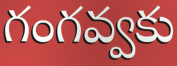
గంగవ్వకు